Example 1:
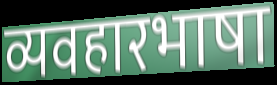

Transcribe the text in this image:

व्यवहारभाषा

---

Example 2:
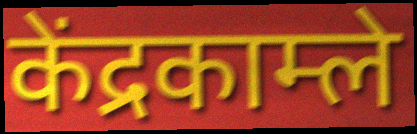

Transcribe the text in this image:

केंद्रकाम्ले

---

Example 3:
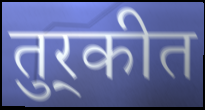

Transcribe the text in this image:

तुर्कीत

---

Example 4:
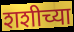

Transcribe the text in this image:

शशीच्या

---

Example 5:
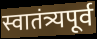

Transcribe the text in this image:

स्वातंत्र्यपूर्व